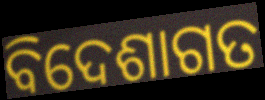
ବିଦେଶାଗତ